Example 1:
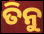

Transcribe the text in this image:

ତିନୁ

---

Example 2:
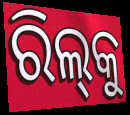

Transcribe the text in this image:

ରିଲ୍‌କୁ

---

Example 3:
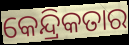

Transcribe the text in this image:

କେନ୍ଦ୍ରିକତାର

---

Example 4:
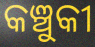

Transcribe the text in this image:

କଞ୍ଚୁକୀ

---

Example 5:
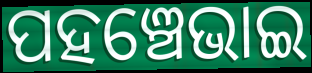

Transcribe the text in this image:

ପହଞ୍ଚେଭାଇ